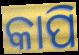
କାପି